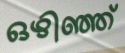
ഒഴിഞ്ഞ്